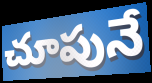
చూపునే